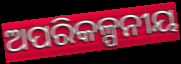
ଅପରିକଳ୍ପନୀୟ